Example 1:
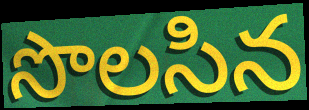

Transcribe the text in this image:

సొలసిన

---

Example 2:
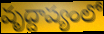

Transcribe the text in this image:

వృద్దాప్యంలో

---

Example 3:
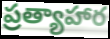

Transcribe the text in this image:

ప్రత్యాహార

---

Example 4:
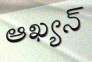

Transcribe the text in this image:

ఆఖ్యన్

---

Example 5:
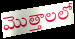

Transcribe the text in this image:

మొత్తాలలో